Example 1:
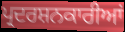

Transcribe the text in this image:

ਪ੍ਰਦਰਸ਼ਨਕਾਰੀਆਂ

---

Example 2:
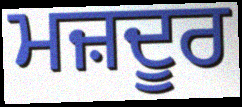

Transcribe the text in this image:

ਮਜ਼ਦੂਰ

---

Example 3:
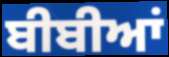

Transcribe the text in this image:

ਬੀਬੀਆਂ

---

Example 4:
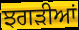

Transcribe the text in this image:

ਝਗੜੀਆਂ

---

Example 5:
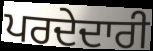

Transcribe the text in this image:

ਪਰਦੇਦਾਰੀ